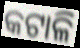
କଟାଳି